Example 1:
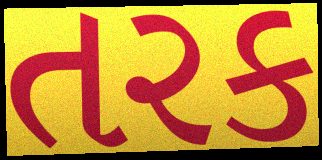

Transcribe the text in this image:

તરક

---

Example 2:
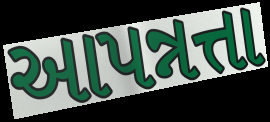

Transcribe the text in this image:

આપન્નત્તા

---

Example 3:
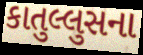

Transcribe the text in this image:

કાતુલ્લુસના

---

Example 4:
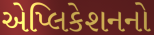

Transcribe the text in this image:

એપ્લિકેશનનો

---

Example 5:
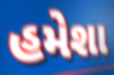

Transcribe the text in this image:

હમેશા